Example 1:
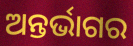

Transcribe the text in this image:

ଅନ୍ତର୍ଭାଗର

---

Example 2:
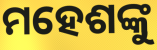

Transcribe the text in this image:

ମହେଶଙ୍କୁ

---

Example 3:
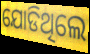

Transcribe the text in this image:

ଯୋଡିଥିଲେ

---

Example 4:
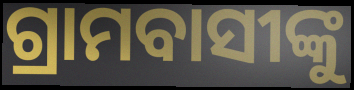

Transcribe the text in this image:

ଗ୍ରାମବାସୀଙ୍କୁ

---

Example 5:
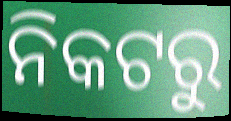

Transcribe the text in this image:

ନିକଟରୁ